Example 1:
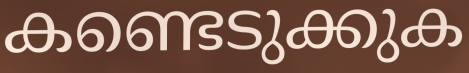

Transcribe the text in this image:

കണ്ടെടുക്കുക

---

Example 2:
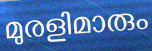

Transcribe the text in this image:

മുരളിമാരും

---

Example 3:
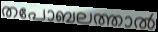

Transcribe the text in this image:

തപോബലത്താൽ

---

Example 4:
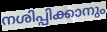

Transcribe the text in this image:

നശിപ്പിക്കാനും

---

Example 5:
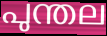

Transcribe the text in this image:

പുന്തല